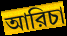
আরিচা